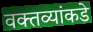
वक्तव्यांकडे